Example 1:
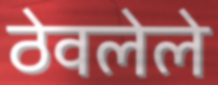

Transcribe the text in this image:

ठेवलेले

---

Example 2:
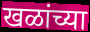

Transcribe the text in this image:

खळांच्या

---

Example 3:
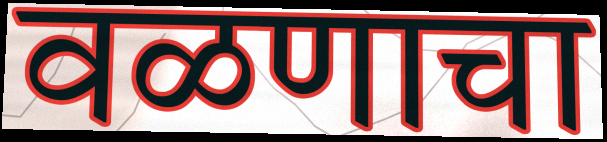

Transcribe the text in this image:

वळणाचा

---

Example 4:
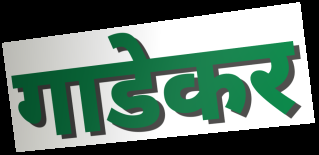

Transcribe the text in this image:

गाडेकर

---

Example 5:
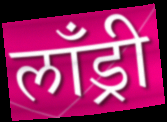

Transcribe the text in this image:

लॉंड्री